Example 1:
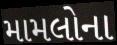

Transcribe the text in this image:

મામલોના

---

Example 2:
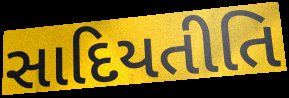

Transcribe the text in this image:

સાદિયતીતિ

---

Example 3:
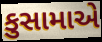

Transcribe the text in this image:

કુસામાએ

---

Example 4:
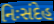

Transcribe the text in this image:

નિઃસંદેહ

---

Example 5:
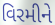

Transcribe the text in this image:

વિરમીને